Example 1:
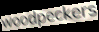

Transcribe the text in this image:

woodpeckers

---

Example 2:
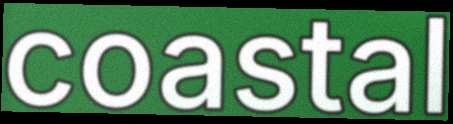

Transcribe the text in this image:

coastal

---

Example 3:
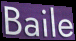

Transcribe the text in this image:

Baile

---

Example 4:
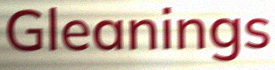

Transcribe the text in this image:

Gleanings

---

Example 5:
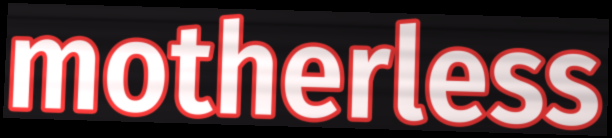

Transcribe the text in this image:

motherless